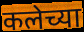
कलेच्या